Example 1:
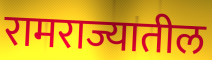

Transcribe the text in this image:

रामराज्यातील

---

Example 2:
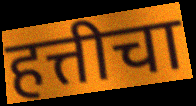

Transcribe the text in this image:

हत्तीचा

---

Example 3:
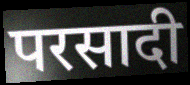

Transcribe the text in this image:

परसादी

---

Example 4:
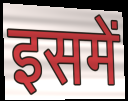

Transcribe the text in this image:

इसमें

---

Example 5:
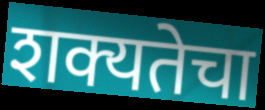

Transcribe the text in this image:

शक्‍यतेचा